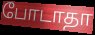
போடாதா